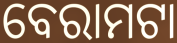
ବେରାମଟା